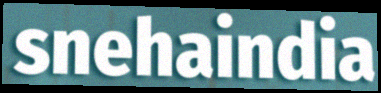
snehaindia